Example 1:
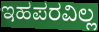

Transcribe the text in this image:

ಇಹಪರವಿಲ್ಲ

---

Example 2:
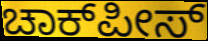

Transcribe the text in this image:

ಚಾಕ್‍ಪೀಸ್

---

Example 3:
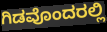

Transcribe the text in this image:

ಗಿಡವೊಂದರಲ್ಲಿ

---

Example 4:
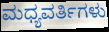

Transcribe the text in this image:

ಮಧ್ಯವರ್ತಿಗಳು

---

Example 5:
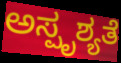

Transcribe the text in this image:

ಅಸ್ಪೃಶ್ಯತೆ